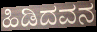
ಹಿಡಿದವನ